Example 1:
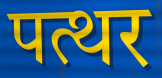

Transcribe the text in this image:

पत्थर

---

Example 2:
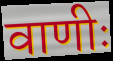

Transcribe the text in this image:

वाणीः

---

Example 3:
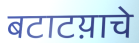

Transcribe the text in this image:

बटाटय़ाचे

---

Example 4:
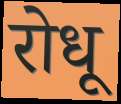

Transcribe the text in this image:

रोधू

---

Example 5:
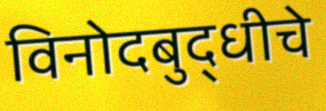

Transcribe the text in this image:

विनोदबुद्धीचे